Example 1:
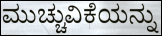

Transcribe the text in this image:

ಮುಚ್ಚುವಿಕೆಯನ್ನು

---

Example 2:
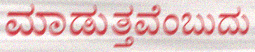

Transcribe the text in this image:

ಮಾಡುತ್ತವೆಂಬುದು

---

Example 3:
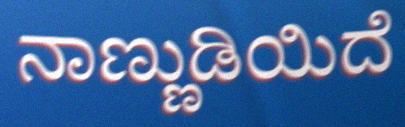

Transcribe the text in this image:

ನಾಣ್ಣುಡಿಯಿದೆ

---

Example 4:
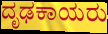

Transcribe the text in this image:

ದೃಢಕಾಯರು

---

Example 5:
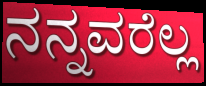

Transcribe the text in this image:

ನನ್ನವರೆಲ್ಲ